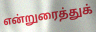
என்றுரைத்துக்